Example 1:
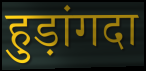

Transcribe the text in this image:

हुड़ांगदा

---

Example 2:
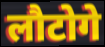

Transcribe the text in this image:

लौटोगे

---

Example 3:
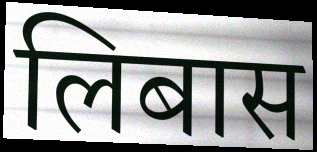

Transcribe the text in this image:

लिबास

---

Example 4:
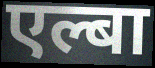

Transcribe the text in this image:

एल्बा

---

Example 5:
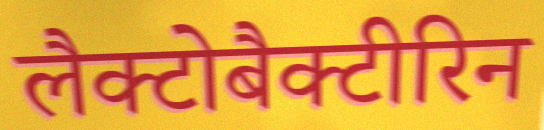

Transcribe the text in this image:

लैक्टोबैक्टीरिन